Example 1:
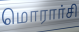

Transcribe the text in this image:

மொரார்சி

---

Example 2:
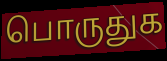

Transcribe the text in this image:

பொருதுக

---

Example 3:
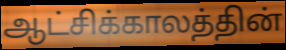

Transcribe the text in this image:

ஆட்சிக்காலத்தின்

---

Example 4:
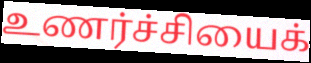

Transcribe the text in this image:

உணர்ச்சியைக்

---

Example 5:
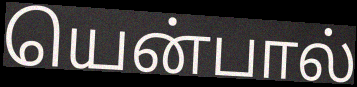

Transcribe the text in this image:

யென்பால்